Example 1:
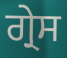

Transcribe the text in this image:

ਗ੍ਰੇਸ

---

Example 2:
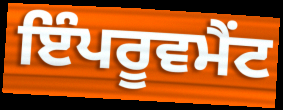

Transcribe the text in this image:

ਇੰਪਰੂਵਮੈਂਟ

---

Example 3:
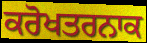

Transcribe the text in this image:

ਕਰੋਖਤਰਨਾਕ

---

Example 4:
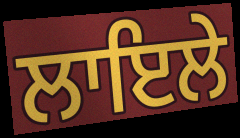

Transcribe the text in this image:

ਲਾਇਲੇ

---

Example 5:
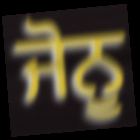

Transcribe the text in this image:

ਜੋਨੂ